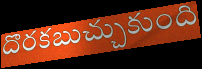
దొరకబుచ్చుకుంది